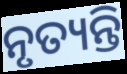
ନୃତ୍ୟନ୍ତି